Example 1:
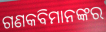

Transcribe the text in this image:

ଗଣକବିମାନଙ୍କର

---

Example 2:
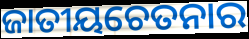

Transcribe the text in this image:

ଜାତୀୟଚେତନାର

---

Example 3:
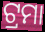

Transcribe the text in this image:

ଟ୍ରମା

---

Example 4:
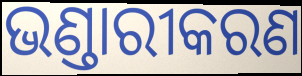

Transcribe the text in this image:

ଭଣ୍ଡାରୀକରଣ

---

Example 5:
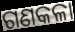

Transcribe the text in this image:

ଗଣକଳା